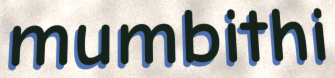
mumbithi